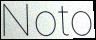
Noto